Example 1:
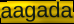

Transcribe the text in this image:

aagada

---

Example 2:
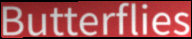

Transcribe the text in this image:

Butterflies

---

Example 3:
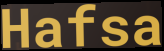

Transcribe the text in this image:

Hafsa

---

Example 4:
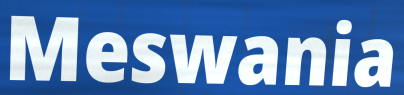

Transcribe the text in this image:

Meswania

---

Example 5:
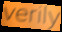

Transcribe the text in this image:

verily